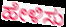
ಹೇಳಿಸು